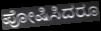
ಪೋಷಿಸಿದರೂ